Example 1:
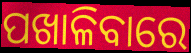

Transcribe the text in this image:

ପଖାଳିବାରେ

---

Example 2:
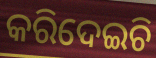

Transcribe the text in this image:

କରିଦେଇଚି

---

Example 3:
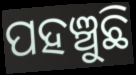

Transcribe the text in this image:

ପହଞ୍ଚୁଛି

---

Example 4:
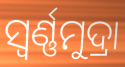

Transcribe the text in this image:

ସ୍ୱର୍ଣ୍ଣମୁଦ୍ରା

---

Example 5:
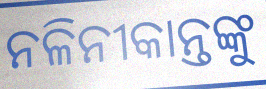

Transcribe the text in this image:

ନଳିନୀକାନ୍ତଙ୍କୁ